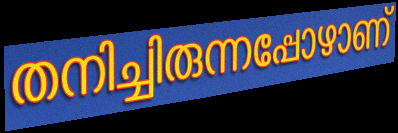
തനിച്ചിരുന്നപ്പോഴാണ്